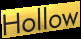
Hollow